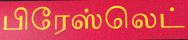
பிரேஸ்லெட்